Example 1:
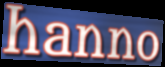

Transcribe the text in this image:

hanno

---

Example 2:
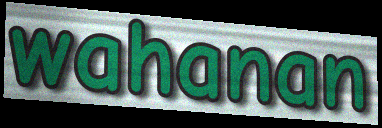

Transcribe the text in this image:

wahanan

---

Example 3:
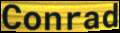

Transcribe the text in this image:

Conrad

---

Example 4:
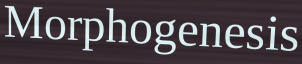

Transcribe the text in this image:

Morphogenesis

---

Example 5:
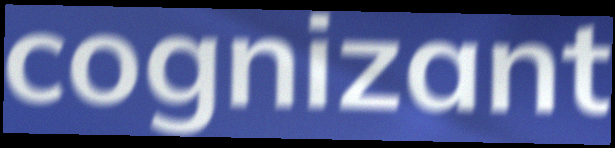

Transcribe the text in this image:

cognizant